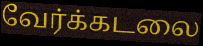
வேர்க்கடலை